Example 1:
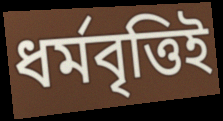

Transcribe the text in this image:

ধর্মবৃত্তিই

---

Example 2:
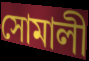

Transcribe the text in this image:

সোমালী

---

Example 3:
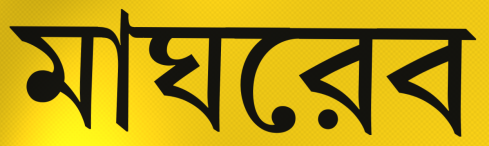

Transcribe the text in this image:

মাঘরেব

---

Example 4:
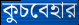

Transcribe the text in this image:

কুচবেহার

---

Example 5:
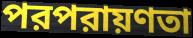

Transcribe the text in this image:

পরপরায়ণতা